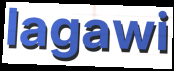
lagawi